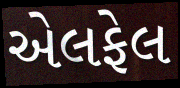
એલફેલ